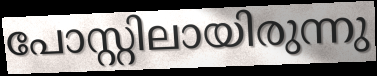
പോസ്റ്റിലായിരുന്നു